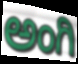
ಅಂಗಿ